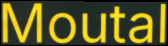
Moutal